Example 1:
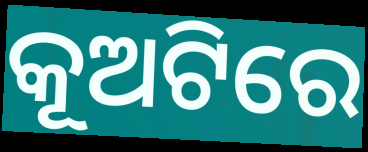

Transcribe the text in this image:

କୂଅଟିରେ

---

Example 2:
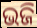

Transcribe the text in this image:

ଭଜି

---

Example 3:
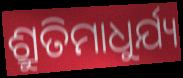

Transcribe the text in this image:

ଶ୍ରୁତିମାଧୁର୍ଯ୍ୟ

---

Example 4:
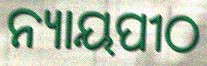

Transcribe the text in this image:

ନ୍ୟାୟପୀଠ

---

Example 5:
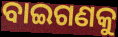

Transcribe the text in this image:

ବାଇଗଣକୁ